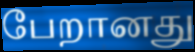
பேறானது